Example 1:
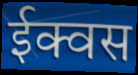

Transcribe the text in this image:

ईक्‍वस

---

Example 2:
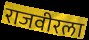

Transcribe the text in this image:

राजवीरला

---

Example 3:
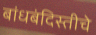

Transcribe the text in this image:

बांधबंदिस्तीचे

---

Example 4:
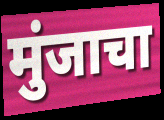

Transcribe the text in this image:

मुंजाचा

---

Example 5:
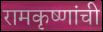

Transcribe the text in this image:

रामकृष्णांची